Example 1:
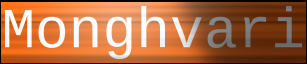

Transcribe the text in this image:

Monghvari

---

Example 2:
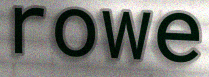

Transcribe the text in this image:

rowe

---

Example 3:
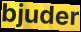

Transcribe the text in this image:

bjuder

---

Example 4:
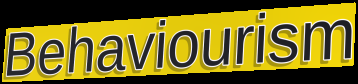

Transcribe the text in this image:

Behaviourism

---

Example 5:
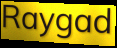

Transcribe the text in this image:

Raygad